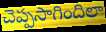
చెప్పసాగిందిలా